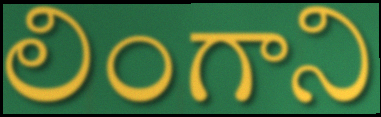
లింగాని